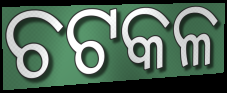
ଚଟକଳ